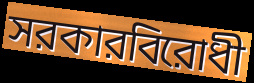
সরকারবিরোধী